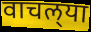
वाचल्या